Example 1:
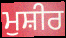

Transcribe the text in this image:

ਮੁਸ਼ੀਰ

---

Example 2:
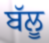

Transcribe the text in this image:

ਬੱਲੂ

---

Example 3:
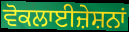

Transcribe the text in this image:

ਵੋਕਲਾਈਜ਼ੇਸ਼ਨਾਂ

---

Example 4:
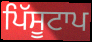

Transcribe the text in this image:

ਪਿੱਸੂਟਾਪ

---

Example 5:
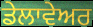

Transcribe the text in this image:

ਡੇਲਾਵੇਅਰ